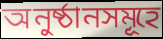
অনুষ্ঠানসমূহে